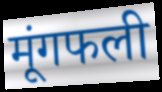
मूंगफली